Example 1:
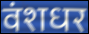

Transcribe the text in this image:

वंशधर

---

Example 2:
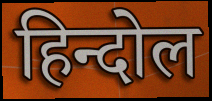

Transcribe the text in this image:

हिन्दोल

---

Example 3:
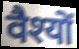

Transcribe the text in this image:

वैश्‍यों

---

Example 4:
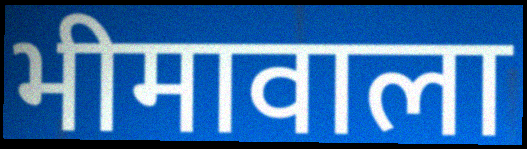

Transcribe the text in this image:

भीमावाला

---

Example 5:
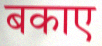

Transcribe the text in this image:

बकाए